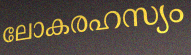
ലോകരഹസ്യം